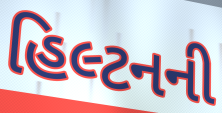
હિલ્ટનની